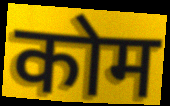
कोम